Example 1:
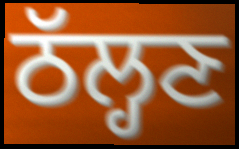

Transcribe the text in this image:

ਠੱਲ੍ਹਣ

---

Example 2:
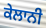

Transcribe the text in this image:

ਕੇਲਾਨੀ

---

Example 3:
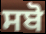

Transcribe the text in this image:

ਸਬੋ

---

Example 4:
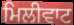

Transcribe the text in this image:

ਮਿਲੀਵਾਟ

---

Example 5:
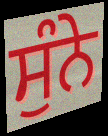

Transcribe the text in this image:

ਸੁੰਨੇ